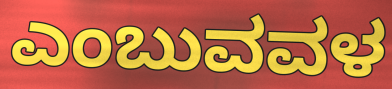
ಎಂಬುವವಳ